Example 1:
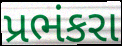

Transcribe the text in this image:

પ્રભંકરા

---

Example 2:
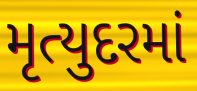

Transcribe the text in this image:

મૃત્યુદરમાં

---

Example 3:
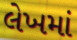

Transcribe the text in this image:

લેખમાં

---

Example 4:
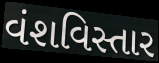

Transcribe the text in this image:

વંશવિસ્તાર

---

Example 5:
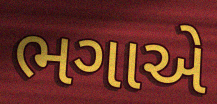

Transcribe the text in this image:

ભગાએ